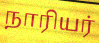
நாரியர்